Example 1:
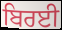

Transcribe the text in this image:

ਬਿਰਈ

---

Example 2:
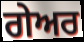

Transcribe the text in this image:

ਗੇਅਰ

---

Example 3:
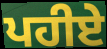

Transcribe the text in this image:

ਪਹੀਏ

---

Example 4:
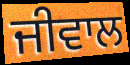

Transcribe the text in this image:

ਜੀਵਾਲ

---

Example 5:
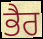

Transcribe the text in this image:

ਭੈਰ